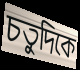
চতুদিকে